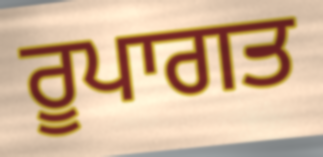
ਰੂਪਾਗਤ